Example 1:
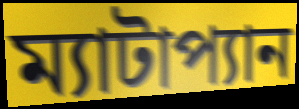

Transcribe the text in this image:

ম্যাটাপ্যান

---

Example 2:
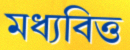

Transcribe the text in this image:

মধ্যবিত্ত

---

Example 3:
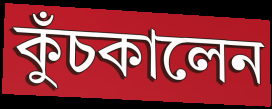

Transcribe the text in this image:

কুঁচকালেন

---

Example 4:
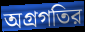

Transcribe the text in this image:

অগ্রগতির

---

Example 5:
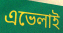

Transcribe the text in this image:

এভেলাই